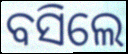
ବସିଲେ